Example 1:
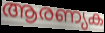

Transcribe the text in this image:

ആരണ്യക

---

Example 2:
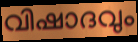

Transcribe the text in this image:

വിഷാദവും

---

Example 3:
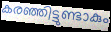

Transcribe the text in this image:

കരഞ്ഞിട്ടുണ്ടാകും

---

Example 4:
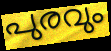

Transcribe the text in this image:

പുരവും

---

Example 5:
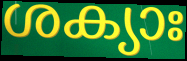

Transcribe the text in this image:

ശക്യാഃ